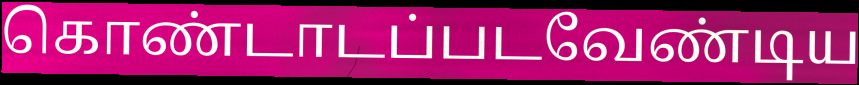
கொண்டாடப்படவேண்டிய